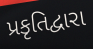
પ્રકૃતિદ્વારા